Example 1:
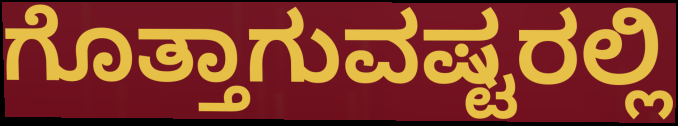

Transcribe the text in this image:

ಗೊತ್ತಾಗುವಷ್ಟರಲ್ಲಿ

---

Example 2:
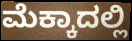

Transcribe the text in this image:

ಮೆಕ್ಕಾದಲ್ಲಿ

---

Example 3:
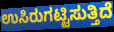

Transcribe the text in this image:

ಉಸಿರುಗಟ್ಟಿಸುತ್ತಿದೆ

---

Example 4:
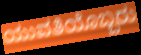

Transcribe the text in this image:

ಯುವತಿಯೊಬ್ಬರು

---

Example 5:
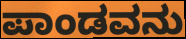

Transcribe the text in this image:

ಪಾಂಡವನು